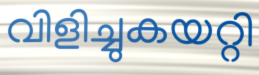
വിളിച്ചുകയറ്റി